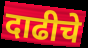
दाढीचे